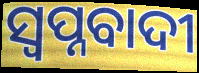
ସ୍ୱପ୍ନବାଦୀ